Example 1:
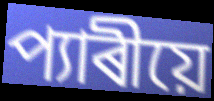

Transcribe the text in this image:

প্যাৰীয়ে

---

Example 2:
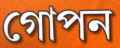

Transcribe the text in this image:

গোপন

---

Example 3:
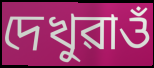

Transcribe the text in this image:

দেখুৱাওঁ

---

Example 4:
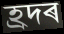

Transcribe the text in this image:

হ্ৰদৰ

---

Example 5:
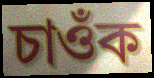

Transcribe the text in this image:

চাওঁক